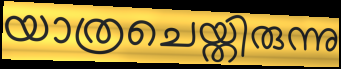
യാത്രചെയ്തിരുന്നു